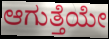
ಆಗುತ್ತೆಯೇ